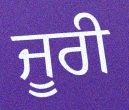
ਜੂਰੀ